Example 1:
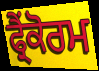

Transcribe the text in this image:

ਫ੍ਰੈਂਕੋਰਮ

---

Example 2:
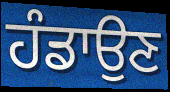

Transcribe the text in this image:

ਹੰਡਾਉਣ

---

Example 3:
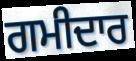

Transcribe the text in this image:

ਗਮੀਦਾਰ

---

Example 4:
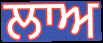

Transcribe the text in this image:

ਲਾਅ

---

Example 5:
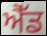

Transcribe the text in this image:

ਐੱਡ